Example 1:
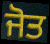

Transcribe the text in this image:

ਜੋਤ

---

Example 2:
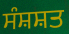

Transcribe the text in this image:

ਸੰਸ਼ਸ਼ਤ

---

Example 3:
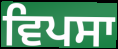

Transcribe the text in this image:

ਵਿਪਸਾ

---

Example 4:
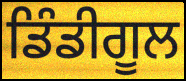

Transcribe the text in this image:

ਡਿੰਡੀਗੂਲ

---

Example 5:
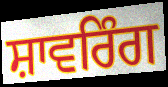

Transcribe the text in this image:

ਸ਼ਾਵਰਿੰਗ